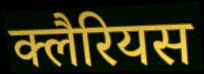
क्लैरियस